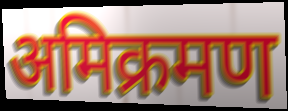
अमिक्रमण